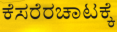
ಕೆಸರೆರಚಾಟಕ್ಕೆ